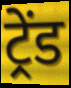
ट्रेंड